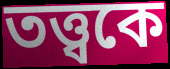
তত্ত্বকে